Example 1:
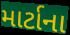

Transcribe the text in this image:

માર્ટાના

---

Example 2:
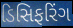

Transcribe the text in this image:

ડિસિફરિંગ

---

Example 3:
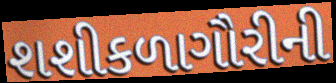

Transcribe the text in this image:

શશીકળાગૌરીની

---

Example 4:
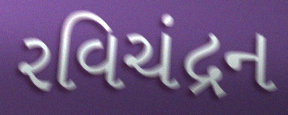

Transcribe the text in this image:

રવિચંદ્રન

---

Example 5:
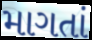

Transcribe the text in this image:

માગતાં